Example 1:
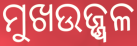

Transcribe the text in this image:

ମୁଖଉଜ୍ଜ୍ୱଳ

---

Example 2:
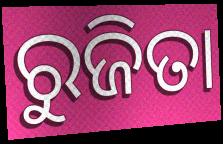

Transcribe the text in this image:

ରୁଜିତା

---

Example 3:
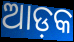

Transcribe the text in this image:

ଆଡ଼କ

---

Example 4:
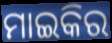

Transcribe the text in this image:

ମାଇକିର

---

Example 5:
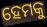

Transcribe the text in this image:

ହେମକୁ